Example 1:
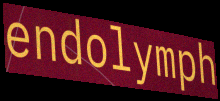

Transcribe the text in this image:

endolymph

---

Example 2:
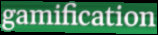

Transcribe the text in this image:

gamification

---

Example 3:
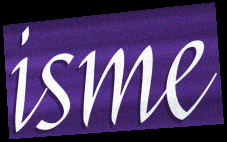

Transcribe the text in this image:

isme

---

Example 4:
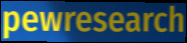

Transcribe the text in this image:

pewresearch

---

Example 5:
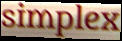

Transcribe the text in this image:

simplex